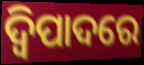
ଦ୍ୱିପାଦରେ